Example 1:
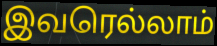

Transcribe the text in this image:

இவரெல்லாம்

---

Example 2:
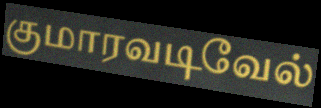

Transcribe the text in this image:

குமாரவடிவேல்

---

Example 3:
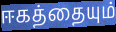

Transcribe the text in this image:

ஈகத்தையும்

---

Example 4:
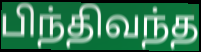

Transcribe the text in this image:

பிந்திவந்த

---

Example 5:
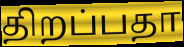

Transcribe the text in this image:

திறப்பதா